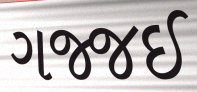
ગજ્જઈ